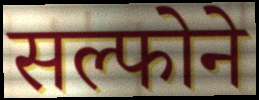
सल्फोने